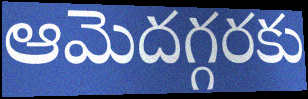
ఆమెదగ్గరకు